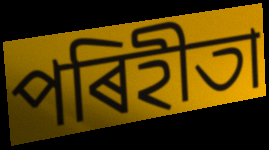
পৰিহীতা